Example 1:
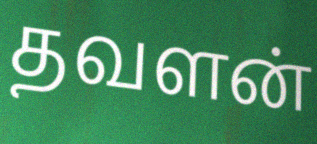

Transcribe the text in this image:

தவளன்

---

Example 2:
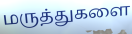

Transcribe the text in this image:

மருத்துகளை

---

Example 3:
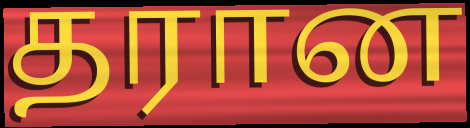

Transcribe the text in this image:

தரான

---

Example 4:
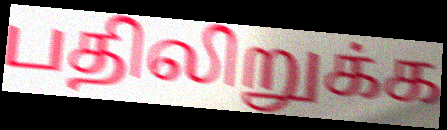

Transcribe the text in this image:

பதிலிறுக்க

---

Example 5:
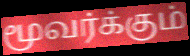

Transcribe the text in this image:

மூவர்க்கும்